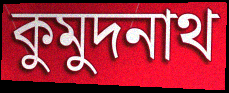
কুমুদনাথ